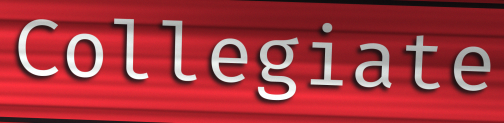
Collegiate